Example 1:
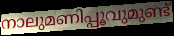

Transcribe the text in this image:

നാലുമണിപ്പൂവുമുണ്ട്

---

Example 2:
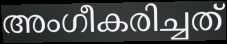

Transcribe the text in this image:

അംഗീകരിച്ചത്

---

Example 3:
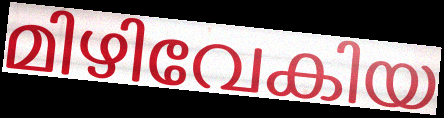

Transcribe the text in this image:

മിഴിവേകിയ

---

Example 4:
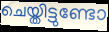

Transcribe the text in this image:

ചെയ്തിട്ടുണ്ടോ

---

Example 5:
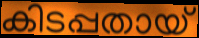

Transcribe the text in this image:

കിടപ്പതായ്